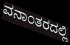
ವನಾಂತರದಲ್ಲಿ